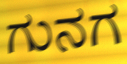
ಗುನಗ